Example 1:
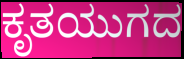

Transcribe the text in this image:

ಕೃತಯುಗದ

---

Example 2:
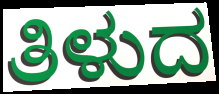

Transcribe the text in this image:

ತಿಳುದ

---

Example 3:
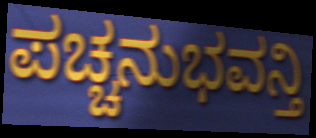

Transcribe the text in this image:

ಪಚ್ಚನುಭವನ್ತಿ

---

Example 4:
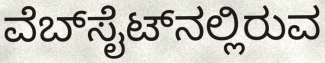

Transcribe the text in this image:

ವೆಬ್‌ಸೈಟ್‌ನಲ್ಲಿರುವ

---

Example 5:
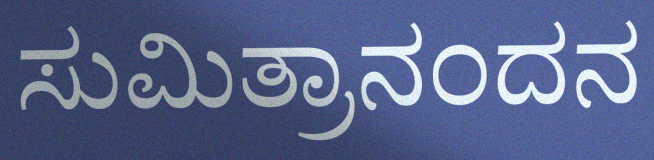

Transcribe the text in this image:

ಸುಮಿತ್ರಾನಂದನ